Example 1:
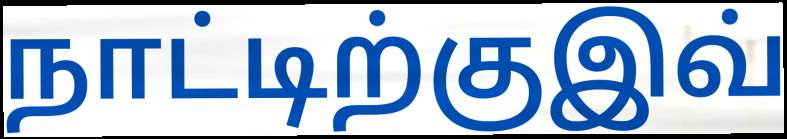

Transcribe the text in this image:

நாட்டிற்குஇவ்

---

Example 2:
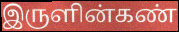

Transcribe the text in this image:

இருளின்கண்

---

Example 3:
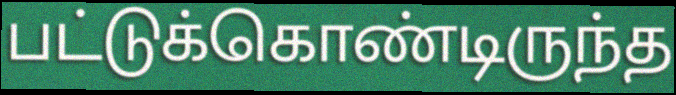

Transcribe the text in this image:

பட்டுக்கொண்டிருந்த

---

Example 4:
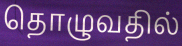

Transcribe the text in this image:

தொழுவதில்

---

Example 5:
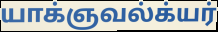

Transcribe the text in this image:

யாக்ஞவல்க்யர்